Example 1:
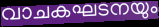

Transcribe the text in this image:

വാചകഘടനയും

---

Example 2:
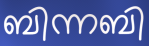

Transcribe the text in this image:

ബിന്നബി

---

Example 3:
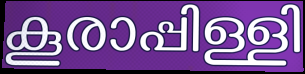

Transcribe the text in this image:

കൂരാപ്പിള്ളി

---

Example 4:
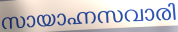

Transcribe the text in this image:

സായാഹ്നസവാരി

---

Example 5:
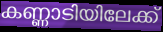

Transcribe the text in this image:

കണ്ണാടിയിലേക്ക്